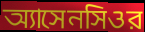
অ্যাসেনসিওর